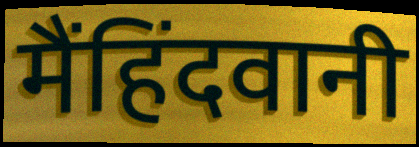
मैंहिंदवानी